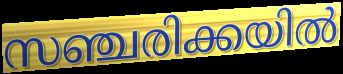
സഞ്ചരിക്കയിൽ